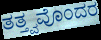
ತತ್ತ್ವವೊಂದರ